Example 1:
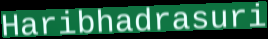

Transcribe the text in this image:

Haribhadrasuri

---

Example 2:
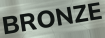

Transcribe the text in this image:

BRONZE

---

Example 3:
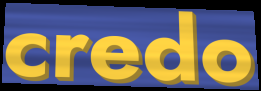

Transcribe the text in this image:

credo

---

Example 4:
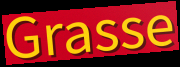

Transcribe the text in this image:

Grasse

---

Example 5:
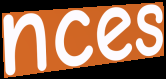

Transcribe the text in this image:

nces